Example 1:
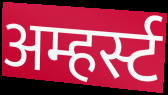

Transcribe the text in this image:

अम्हर्स्ट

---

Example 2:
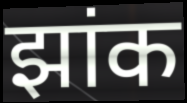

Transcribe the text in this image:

झांक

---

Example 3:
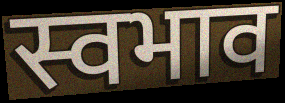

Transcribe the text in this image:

स्वभाव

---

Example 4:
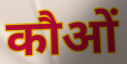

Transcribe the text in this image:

कौओं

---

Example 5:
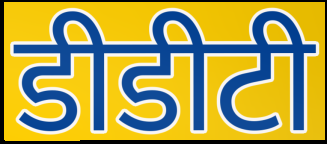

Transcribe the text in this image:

डीडीटी